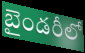
బైండరీలో